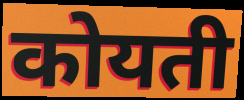
कोयती